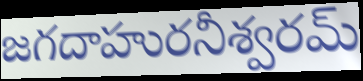
జగదాహురనీశ్వరమ్